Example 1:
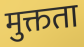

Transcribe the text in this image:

मुक्तता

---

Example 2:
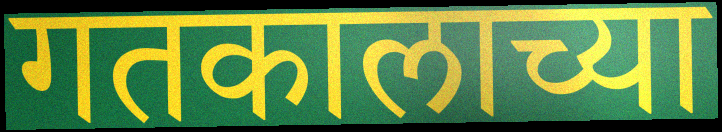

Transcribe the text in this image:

गतकालाच्या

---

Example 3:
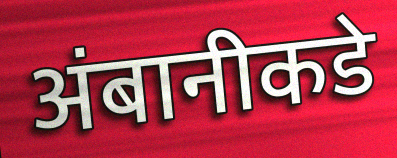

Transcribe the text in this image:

अंबानीकडे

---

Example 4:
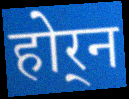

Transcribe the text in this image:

होर्न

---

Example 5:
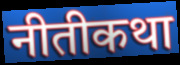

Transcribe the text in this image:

नीतीकथा